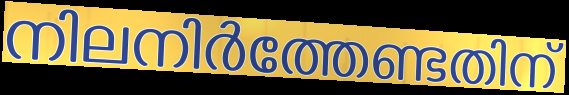
നിലനിർത്തേണ്ടതിന്